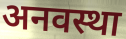
अनवस्था